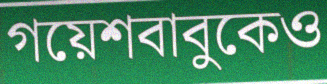
গয়েশবাবুকেও